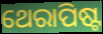
ଥେରାପିଷ୍ଟ